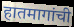
हातमागांची